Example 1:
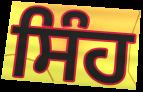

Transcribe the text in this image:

ਸਿੰਹ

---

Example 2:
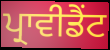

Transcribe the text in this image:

ਪ੍ਰਾਵੀਡੈਂਟ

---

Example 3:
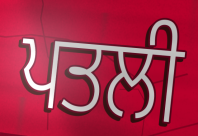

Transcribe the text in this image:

ਪਤਲੀ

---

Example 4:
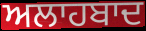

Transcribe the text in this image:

ਅਲਾਹਬਾਦ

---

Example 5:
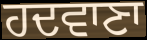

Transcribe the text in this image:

ਹਦਵਾਣਾ